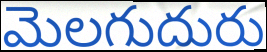
మెలగుదురు